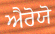
ਐਰੋਯੋ